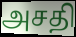
அசதி